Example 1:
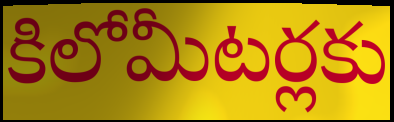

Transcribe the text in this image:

కిలోమీటర్లకు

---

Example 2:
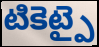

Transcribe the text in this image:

టికెట్పై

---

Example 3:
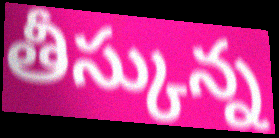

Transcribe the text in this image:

తీస్కున్న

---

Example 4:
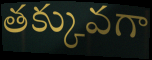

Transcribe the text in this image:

తక్కువగా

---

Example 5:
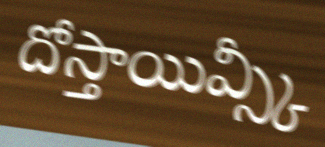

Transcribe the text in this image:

దోస్తాయివ్స్కీ